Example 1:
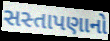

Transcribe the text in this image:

સસ્તાપણાનો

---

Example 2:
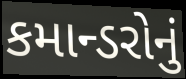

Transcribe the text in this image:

કમાન્ડરોનું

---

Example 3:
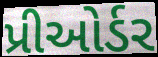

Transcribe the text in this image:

પ્રીઓર્ડર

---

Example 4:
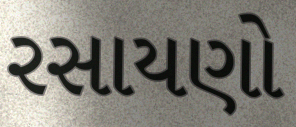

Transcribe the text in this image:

રસાયણો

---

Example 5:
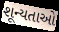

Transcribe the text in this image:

શૂન્યતાઓ